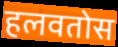
हलवतोस